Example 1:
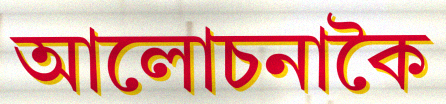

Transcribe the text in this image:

আলোচনাকৈ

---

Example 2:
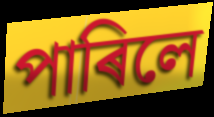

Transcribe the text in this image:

পাৰিলে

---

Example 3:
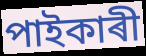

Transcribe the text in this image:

পাইকাৰী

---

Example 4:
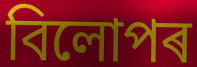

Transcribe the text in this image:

বিলোপৰ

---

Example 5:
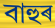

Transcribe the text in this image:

বাহুৰ